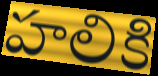
హలికి